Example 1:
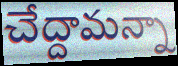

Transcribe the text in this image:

చేద్దామన్నా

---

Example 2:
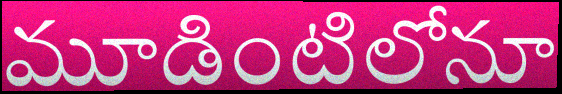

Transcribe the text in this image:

మూడింటిలోనూ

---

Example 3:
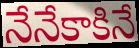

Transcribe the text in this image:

నేనేకాకినే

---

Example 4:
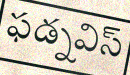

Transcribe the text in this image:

ఫడ్నవిస్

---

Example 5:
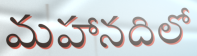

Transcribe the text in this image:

మహానదిలో